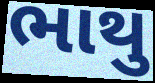
ભાથુ